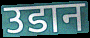
उडान